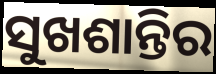
ସୁଖଶାନ୍ତିର